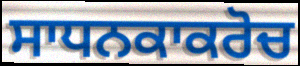
ਸਾਧਨਕਾਕਰੋਚ